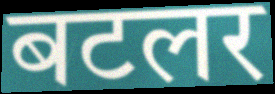
बटलर